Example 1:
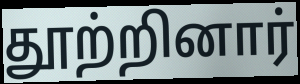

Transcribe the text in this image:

தூற்றினார்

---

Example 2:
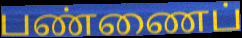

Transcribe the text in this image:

பண்ணைப்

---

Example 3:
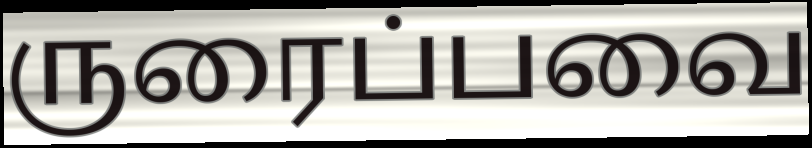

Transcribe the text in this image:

ருரைப்பவை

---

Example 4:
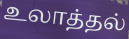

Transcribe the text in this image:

உலாத்தல்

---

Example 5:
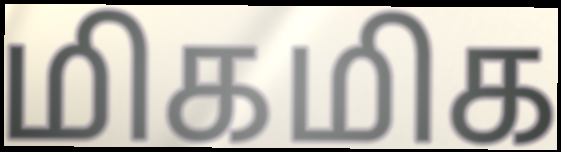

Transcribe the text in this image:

மிகமிக